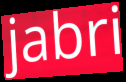
jabri